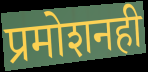
प्रमोशनही